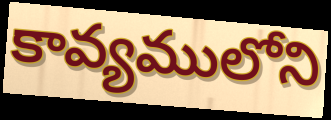
కావ్యములోని